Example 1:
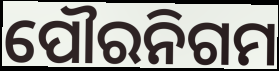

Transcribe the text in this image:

ପୌରନିଗମ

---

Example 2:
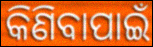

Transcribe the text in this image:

କିଣିବାପାଇଁ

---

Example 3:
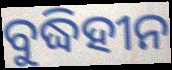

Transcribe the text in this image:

ବୁଦ୍ଧିହୀନ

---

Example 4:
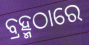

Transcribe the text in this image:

ବ୍ରହ୍ମଠାରେ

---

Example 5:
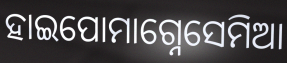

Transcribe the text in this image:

ହାଇପୋମାଗ୍ନେସେମିଆ